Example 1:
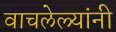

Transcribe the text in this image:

वाचलेल्यांनी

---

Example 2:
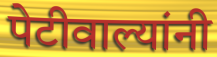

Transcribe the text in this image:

पेटीवाल्यांनी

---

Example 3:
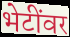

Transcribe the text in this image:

भेटींवर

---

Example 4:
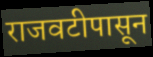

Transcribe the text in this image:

राजवटीपासून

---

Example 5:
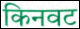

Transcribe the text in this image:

किनवट